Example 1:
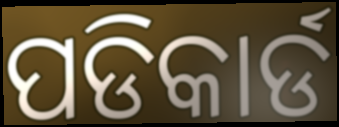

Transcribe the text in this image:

ପଡିକାର୍ଡ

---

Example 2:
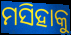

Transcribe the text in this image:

ମସିହାକୁ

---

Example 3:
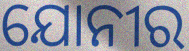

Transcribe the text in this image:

ଯୋନୀର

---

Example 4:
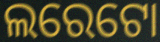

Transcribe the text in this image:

ଲରେଟୋ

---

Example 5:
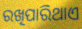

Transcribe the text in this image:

ରଖିପାରିଥାଏ